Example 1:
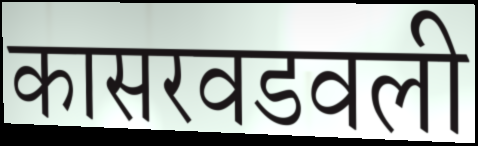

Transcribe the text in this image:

कासरवडवली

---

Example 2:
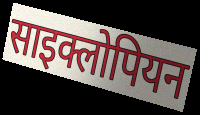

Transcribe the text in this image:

साइक्लोपियन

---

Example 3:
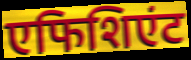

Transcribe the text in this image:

एफिशिएंट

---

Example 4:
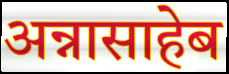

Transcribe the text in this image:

अन्नासाहेब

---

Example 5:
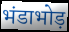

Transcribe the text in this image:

भंडाभोड़